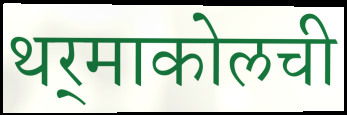
थर्माकोलची